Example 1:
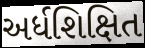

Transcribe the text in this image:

અર્ધશિક્ષિત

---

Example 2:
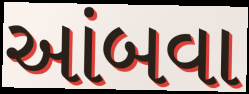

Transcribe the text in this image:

આંબવા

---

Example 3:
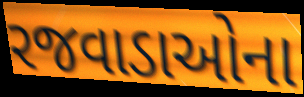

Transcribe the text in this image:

રજવાડાઓના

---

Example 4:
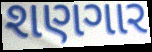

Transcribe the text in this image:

શણગાર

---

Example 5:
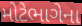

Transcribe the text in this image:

મોટેભાગેના